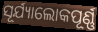
ସୂର୍ଯ୍ୟାଲୋକପୂର୍ଣ୍ଣ